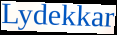
Lydekkar